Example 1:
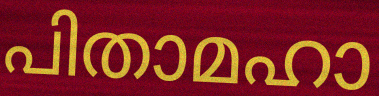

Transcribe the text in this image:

പിതാമഹാ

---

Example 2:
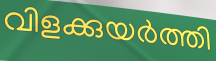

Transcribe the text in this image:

വിളക്കുയർത്തി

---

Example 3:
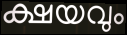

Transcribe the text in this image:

ക്ഷയവും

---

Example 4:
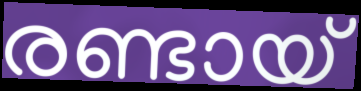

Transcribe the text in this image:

രണ്ടായ്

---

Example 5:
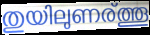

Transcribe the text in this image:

തുയിലുണര്ത്തൂ